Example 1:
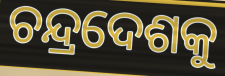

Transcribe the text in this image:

ଚନ୍ଦ୍ରଦେଶକୁ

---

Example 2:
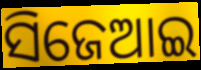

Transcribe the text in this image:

ସିଜେଆଇ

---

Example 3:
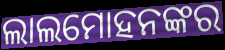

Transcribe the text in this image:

ଲାଲମୋହନଙ୍କର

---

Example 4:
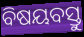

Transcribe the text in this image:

ବିଷୟବସ୍ତୁ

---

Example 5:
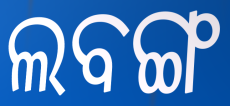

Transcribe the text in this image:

ଲବଙ୍ଗ